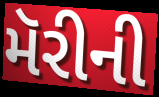
મૅરીની